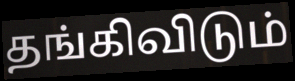
தங்கிவிடும்